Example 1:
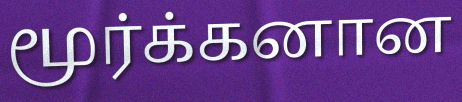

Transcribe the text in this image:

மூர்க்கனான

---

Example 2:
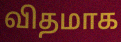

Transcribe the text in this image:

விதமாக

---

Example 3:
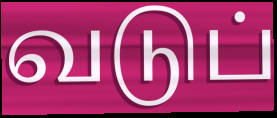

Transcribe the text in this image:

வடுப்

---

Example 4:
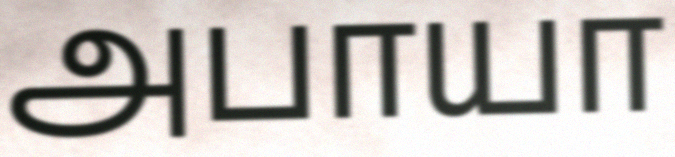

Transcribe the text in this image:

அபாயா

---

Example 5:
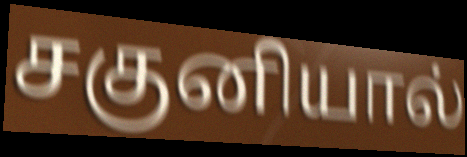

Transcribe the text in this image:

சகுனியால்